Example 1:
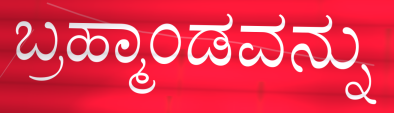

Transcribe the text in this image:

ಬ್ರಹ್ಮಾಂಡವನ್ನು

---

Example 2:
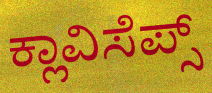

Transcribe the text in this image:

ಕ್ಲಾವಿಸೆಪ್ಸ್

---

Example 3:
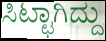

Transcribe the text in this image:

ಸಿಟ್ಟಾಗಿದ್ದು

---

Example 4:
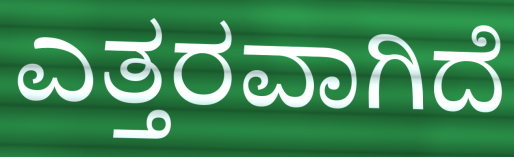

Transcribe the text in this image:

ಎತ್ತರವಾಗಿದೆ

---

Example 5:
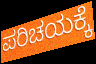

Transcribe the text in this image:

ಪರಿಚಯಕ್ಕೆ